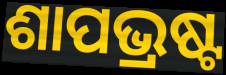
ଶାପଭ୍ରଷ୍ଟ